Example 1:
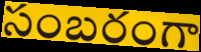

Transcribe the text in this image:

సంబరంగా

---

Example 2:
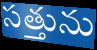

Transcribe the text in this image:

సత్తును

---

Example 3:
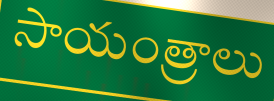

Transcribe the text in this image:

సాయంత్రాలు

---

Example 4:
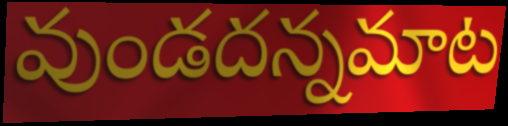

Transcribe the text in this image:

వుండదన్నమాట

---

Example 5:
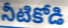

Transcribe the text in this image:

నీటికోడి